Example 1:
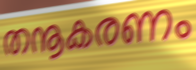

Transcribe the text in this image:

തനൂകരണം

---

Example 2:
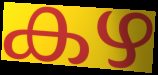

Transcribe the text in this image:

കഴ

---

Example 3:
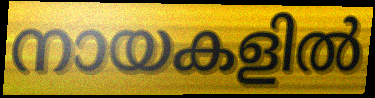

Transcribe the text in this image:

നായകളിൽ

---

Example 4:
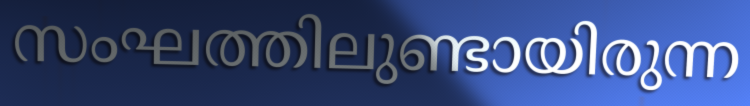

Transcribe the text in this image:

സംഘത്തിലുണ്ടായിരുന്ന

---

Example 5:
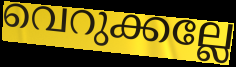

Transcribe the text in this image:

വെറുക്കല്ലേ